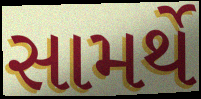
સામર્થે